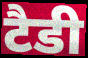
टैडी